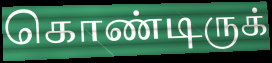
கொண்டிருக்